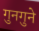
गुनगुने